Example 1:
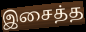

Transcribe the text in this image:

இசைத்த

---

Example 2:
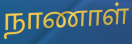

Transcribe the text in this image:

நாணாள்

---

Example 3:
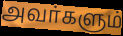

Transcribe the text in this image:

அவர்களும்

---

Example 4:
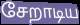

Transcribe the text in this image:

சேறாடிய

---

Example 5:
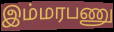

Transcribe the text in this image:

இம்மரபணு